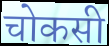
चोकसी